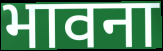
भावना